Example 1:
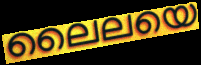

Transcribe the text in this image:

ലൈലയെ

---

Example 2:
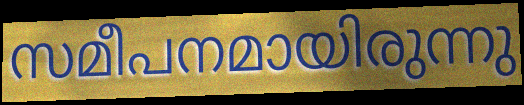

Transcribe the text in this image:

സമീപനമായിരുന്നു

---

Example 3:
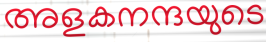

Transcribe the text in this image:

അളകനന്ദയുടെ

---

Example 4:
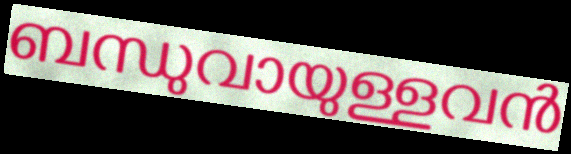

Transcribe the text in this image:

ബന്ധുവായുള്ളവൻ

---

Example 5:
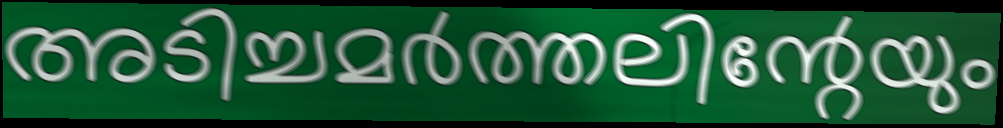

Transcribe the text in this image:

അടിച്ചമർത്തലിന്റേയും